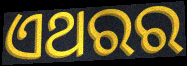
ଏଥରର